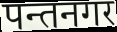
पन्तनगर